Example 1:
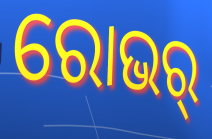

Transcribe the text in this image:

ରୋଭର୍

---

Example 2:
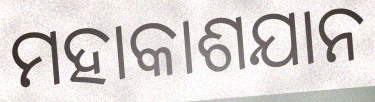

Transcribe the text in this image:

ମହାକାଶଯାନ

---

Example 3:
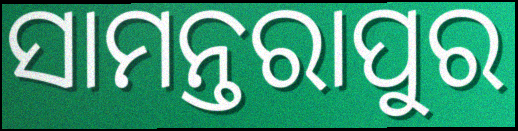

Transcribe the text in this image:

ସାମନ୍ତରାପୁର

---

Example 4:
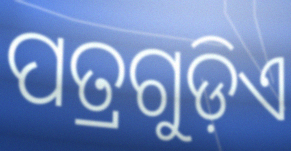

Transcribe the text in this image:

ପତ୍ରଗୁଡ଼ିଏ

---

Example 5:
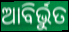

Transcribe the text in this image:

ଆବିର୍ଭୁତ